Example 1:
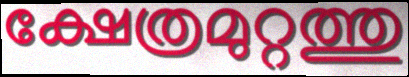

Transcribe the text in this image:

ക്ഷേത്രമുറ്റത്തു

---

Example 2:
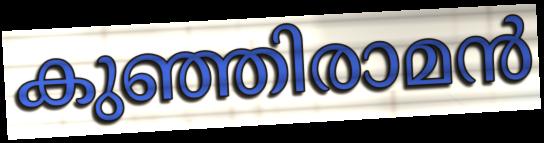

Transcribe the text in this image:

കുഞ്ഞിരാമൻ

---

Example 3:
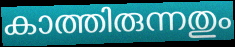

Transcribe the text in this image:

കാത്തിരുന്നതും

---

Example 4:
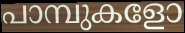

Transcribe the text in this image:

പാമ്പുകളോ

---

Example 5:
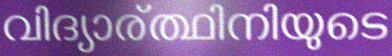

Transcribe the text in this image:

വിദ്യാര്ത്ഥിനിയുടെ